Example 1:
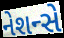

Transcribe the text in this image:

નેશન્સે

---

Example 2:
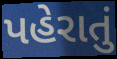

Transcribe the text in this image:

પહેરાતું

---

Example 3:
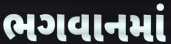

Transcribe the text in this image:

ભગવાનમાં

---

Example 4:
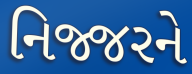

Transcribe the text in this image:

નિજ્જરને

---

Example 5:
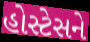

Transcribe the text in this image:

હોસ્ટેસને